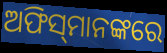
ଅଫିସ୍‌ମାନଙ୍କରେ